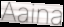
Aaina